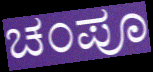
ಚಂಪೂ